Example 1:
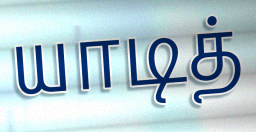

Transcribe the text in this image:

யாடித்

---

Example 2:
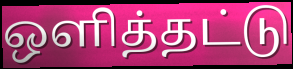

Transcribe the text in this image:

ஒளித்தட்டு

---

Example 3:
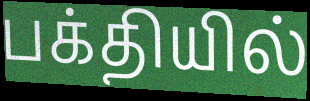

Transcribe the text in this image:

பக்தியில்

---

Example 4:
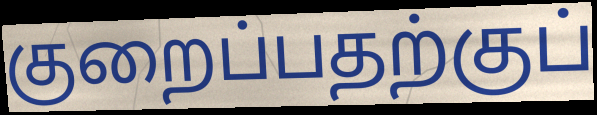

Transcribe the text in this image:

குறைப்பதற்குப்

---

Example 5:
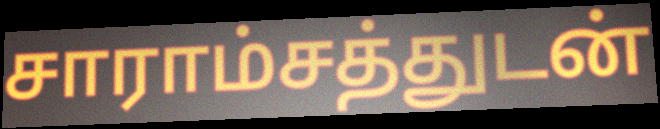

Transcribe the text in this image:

சாராம்சத்துடன்